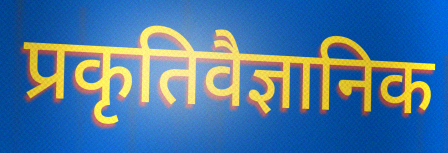
प्रकृतिवैज्ञानिक